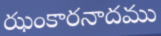
ఝంకారనాదము